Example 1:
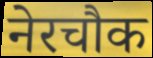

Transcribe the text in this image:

नेरचौक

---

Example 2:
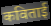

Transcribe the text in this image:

कविताई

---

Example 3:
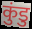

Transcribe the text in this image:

कुंडु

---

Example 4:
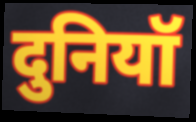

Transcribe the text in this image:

दुनियॉ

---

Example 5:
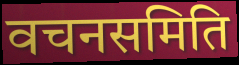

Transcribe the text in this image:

वचनसमिति